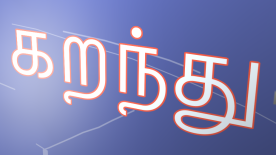
கறந்து